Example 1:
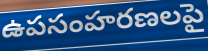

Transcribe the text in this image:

ఉపసంహరణలపై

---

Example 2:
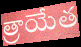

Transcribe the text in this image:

త్రాయేత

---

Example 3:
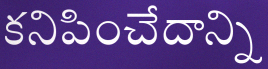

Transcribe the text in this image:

కనిపించేదాన్ని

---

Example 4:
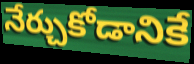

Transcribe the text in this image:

నేర్చుకోడానికే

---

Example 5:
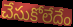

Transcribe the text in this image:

చేసుకోలేదేం